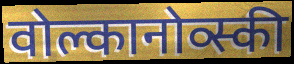
वोल्कानोव्स्की